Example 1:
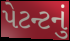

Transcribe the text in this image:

પેટન્ટનું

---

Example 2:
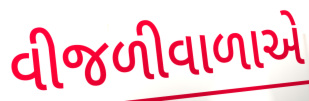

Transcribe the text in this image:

વીજળીવાળાએ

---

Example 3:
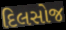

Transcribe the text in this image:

દિલસોજ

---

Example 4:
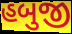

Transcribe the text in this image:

હબુજી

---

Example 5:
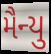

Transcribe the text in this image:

મૈન્યુ